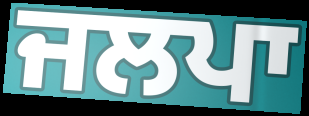
ਜਲਪਾ